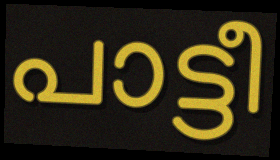
പാട്ടീ